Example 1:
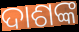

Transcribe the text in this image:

ଦାଶଙ୍କ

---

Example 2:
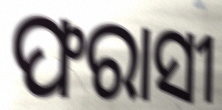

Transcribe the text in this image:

ଫରାସୀ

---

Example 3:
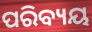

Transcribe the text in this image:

ପରିବ୍ୟୟ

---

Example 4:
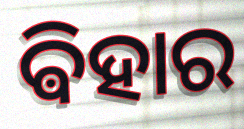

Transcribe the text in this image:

ଵିହାର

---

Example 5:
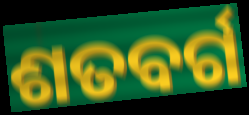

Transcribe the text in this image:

ଶତବର୍ଗ